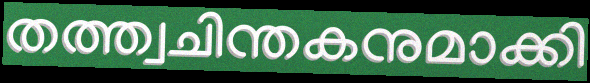
തത്ത്വചിന്തകനുമാക്കി